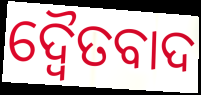
ଦ୍ୱୈତବାଦ